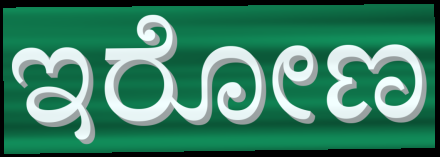
ಇರೋಣ